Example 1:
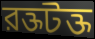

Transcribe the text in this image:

রক্তটক্ত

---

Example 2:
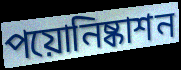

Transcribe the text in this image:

পয়োনিষ্কাশন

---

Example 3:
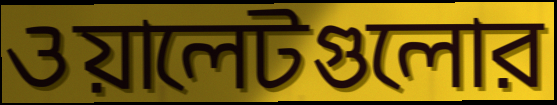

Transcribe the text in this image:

ওয়ালেটগুলোর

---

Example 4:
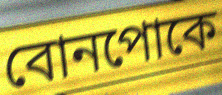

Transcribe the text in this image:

বোনপোকে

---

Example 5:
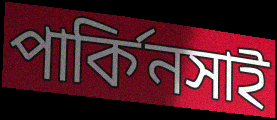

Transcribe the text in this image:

পার্কিনসাই